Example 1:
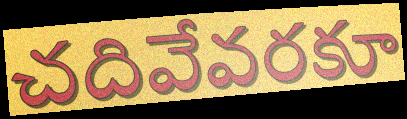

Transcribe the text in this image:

చదివేవరకూ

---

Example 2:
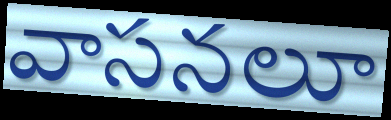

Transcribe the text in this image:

వాసనలూ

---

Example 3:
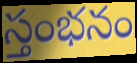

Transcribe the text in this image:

స్తంభనం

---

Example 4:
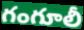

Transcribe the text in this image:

గంగూలీ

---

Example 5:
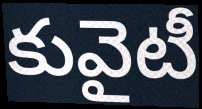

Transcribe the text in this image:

కువైటీ